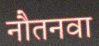
नौतनवा